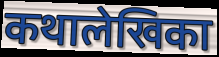
कथालेखिका